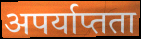
अपर्याप्तता